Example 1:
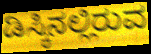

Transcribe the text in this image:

ಡಿಸ್ಕಿನಲ್ಲಿರುವ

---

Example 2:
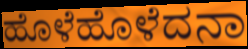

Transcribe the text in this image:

ಹೊಳೆಹೊಳೆದನಾ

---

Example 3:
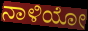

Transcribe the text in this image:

ನಾಳಿಯೋ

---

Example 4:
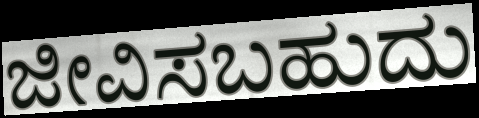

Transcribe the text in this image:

ಜೀವಿಸಬಹುದು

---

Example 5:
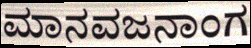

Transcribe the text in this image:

ಮಾನವಜನಾಂಗ